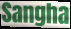
Sangha